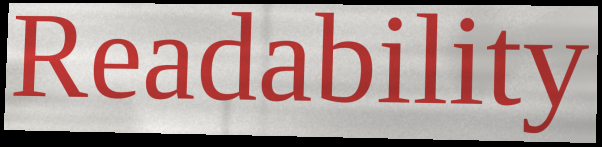
Readability